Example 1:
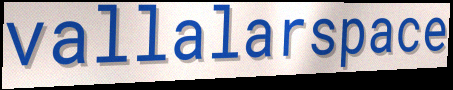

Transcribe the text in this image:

vallalarspace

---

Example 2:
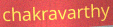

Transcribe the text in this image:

chakravarthy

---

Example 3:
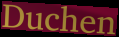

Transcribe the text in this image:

Duchen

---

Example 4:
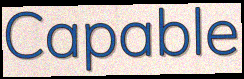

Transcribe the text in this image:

Capable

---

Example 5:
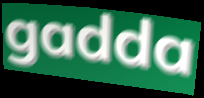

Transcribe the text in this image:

gadda